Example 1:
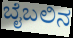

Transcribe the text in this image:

ಬೈಬಲಿನ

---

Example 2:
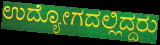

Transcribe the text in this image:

ಉದ್ಯೋಗದಲ್ಲಿದ್ದರು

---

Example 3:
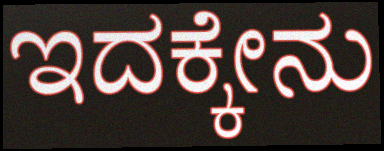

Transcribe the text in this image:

ಇದಕ್ಕೇನು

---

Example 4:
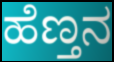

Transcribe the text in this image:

ಹೆಣ್ತನ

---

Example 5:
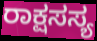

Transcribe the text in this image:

ರಾಕ್ಷಸಸ್ಯ